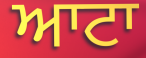
ਆਟਾ